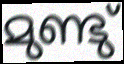
മുണ്ടു്